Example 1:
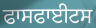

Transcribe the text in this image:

ਫਾਸਫਾਈਟਸ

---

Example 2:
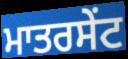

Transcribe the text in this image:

ਮਾਤਰਸੇਂਟ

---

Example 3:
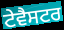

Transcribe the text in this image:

ਟੇਵੈਸਟਰ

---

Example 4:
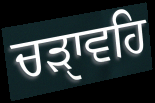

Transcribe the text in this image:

ਚੜੑਾਵਹਿ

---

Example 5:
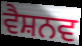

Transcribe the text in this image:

ਵੈਸ਼ਨਵ